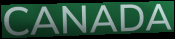
CANADA